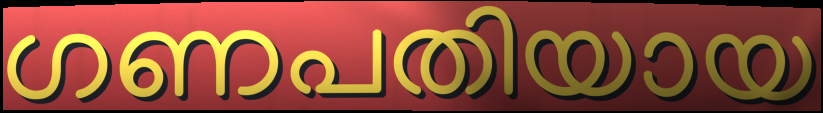
ഗണപതിയായ